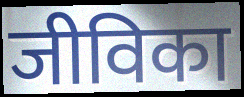
जीविका